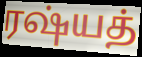
ரஷ்யத்